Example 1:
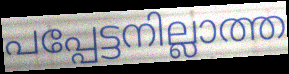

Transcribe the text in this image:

പപ്പേട്ടനില്ലാത്ത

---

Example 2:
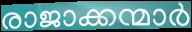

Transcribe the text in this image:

രാജാക്കന്മാർ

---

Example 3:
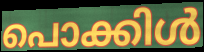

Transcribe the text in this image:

പൊക്കിൾ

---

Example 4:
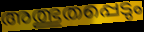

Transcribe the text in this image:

അത്ഭുതപ്പെടും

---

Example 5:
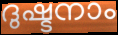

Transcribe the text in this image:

ദുഷ്ടനാം